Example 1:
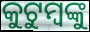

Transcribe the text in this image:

କୁଟୁମ୍ବଙ୍କୁ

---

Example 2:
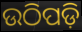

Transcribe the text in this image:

ଉଠିପଡ଼ି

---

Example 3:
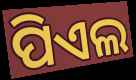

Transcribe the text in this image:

ପିଏଲ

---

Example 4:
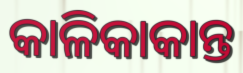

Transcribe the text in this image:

କାଳିକାକାନ୍ତ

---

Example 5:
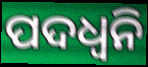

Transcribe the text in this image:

ପଦଧ୍ୱନି